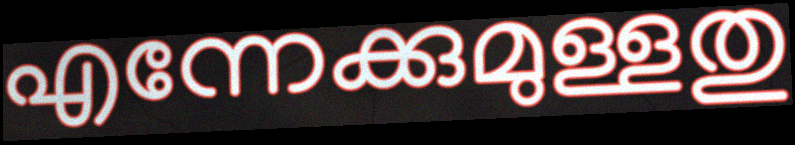
എന്നേക്കുമുള്ളതു